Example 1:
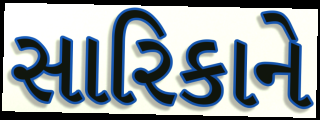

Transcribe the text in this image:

સારિકાને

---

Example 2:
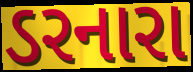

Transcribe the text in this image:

ડરનારા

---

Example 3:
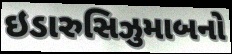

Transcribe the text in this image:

ઇડારુસિઝુમાબનો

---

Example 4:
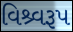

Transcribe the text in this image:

વિશ્ર્વરૂપ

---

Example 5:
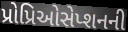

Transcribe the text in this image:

પ્રોપ્રિઓસેપ્શનની